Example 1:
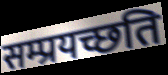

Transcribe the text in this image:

सम्प्रयच्छति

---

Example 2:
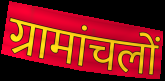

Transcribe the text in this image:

ग्रामांचलों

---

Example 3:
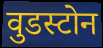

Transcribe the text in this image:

वुडस्टोन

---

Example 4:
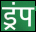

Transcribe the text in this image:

ड्रंप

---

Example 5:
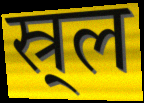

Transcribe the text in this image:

स्र्ल